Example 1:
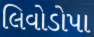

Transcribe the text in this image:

લિવોડોપા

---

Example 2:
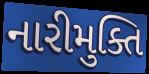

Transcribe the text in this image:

નારીમુક્તિ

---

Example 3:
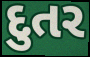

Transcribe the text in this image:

દુતર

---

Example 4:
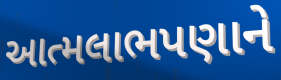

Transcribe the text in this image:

આત્મલાભપણાને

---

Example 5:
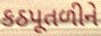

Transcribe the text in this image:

કઠપૂતળીને